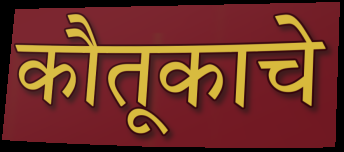
कौतूकाचे